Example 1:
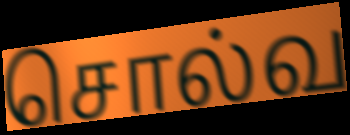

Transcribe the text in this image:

சொல்வ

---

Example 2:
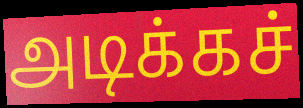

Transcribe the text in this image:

அடிக்கச்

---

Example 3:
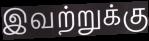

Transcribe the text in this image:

இவற்றுக்கு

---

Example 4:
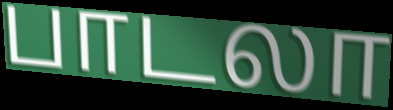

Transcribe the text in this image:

பாடலா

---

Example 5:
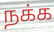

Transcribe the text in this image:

நக்க